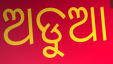
ଅଡୁଆ